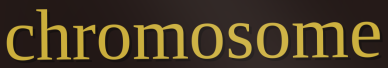
chromosome